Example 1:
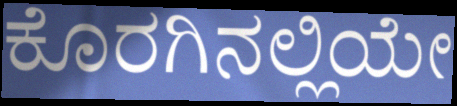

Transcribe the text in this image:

ಕೊರಗಿನಲ್ಲಿಯೇ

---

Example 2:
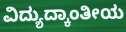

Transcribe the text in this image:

ವಿದ್ಯುದ್ಕಾಂತೀಯ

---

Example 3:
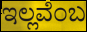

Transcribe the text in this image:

ಇಲ್ಲವೆಂಬ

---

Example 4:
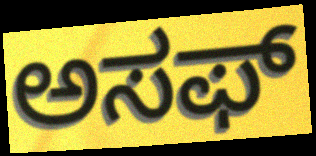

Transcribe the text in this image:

ಅಸಫ್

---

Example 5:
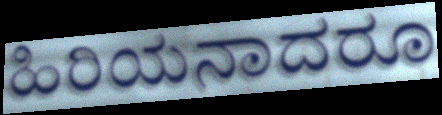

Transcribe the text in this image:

ಹಿರಿಯನಾದರೂ